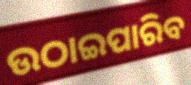
ଉଠାଇପାରିବ